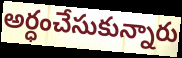
అర్ధంచేసుకున్నారు